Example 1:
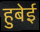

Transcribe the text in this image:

हुबेई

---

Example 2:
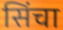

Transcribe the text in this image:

सिंचा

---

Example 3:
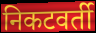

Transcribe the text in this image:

निकटवर्ती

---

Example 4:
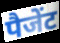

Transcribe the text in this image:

पैजेंट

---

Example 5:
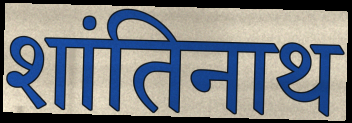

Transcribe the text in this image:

शांतिनाथ